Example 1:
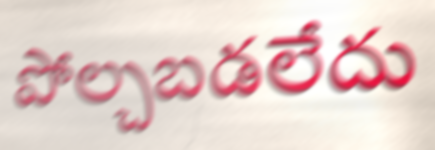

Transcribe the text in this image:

పోల్చబడలేదు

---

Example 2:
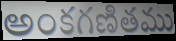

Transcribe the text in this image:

అంకగణితము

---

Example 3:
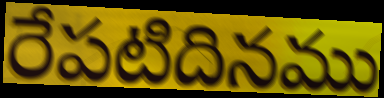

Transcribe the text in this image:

రేపటిదినము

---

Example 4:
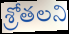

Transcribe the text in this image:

శ్రోతలని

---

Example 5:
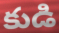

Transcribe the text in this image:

కుడి